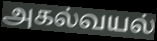
அகல்வயல்